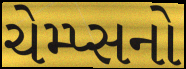
ચેમ્પ્સનો